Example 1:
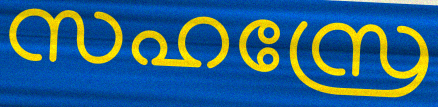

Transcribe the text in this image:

സഹസ്രേ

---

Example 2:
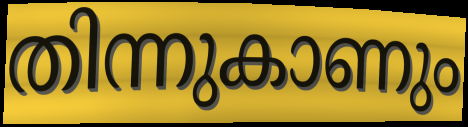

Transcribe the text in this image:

തിന്നുകാണും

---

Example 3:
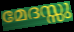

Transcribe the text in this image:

മേദസ്സു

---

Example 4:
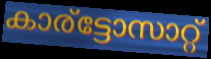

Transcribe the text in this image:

കാര്ട്ടോസാറ്റ്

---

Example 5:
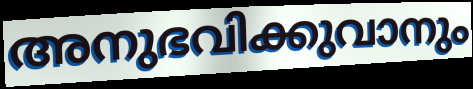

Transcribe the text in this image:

അനുഭവിക്കുവാനും